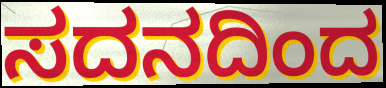
ಸದನದಿಂದ